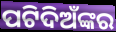
ପଟିଦିଅଁଙ୍କର